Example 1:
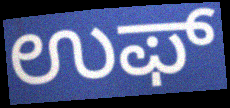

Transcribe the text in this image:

ಉಫ್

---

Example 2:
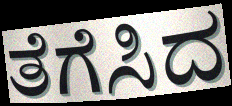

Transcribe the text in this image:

ತೆಗೆಸಿದ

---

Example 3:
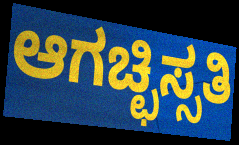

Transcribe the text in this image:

ಆಗಚ್ಛಿಸ್ಸತಿ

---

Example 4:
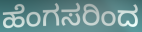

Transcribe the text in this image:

ಹೆಂಗಸರಿಂದ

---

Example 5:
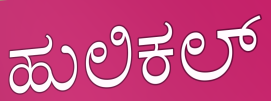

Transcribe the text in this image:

ಹುಲಿಕಲ್